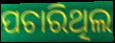
ପଚାରିଥିଲ